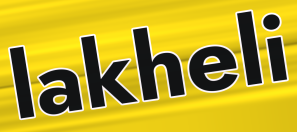
lakheli